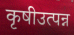
कृषीउत्पन्न